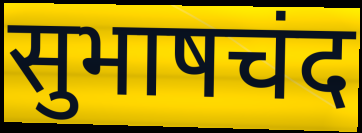
सुभाषचंद